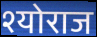
श्योराज